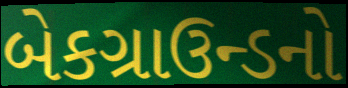
બેકગ્રાઉન્ડનો